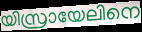
യിസ്രായേലിനെ